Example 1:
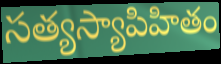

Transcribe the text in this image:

సత్యస్యాపిహితం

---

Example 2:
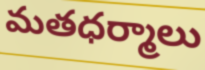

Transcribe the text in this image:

మతధర్మాలు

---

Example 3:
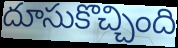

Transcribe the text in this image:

దూసుకొచ్చింది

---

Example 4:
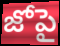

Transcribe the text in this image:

జోపై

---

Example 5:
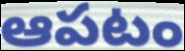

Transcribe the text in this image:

ఆపటం